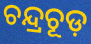
ଚନ୍ଦ୍ରଚୂଡ଼